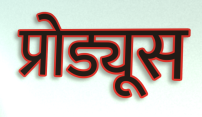
प्रोड्यूस